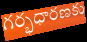
గర్భధారణకు